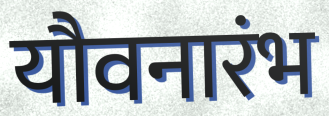
यौवनारंभ